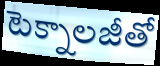
టెక్నాలజీతో